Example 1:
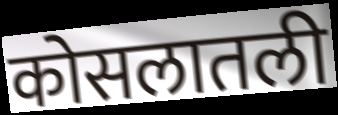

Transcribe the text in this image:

कोसलातली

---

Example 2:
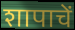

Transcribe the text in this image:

शापाचें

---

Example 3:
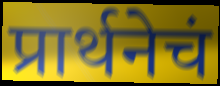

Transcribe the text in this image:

प्रार्थनेचं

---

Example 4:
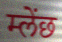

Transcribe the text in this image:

म्लेंछ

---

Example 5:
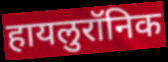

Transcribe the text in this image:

हायलुरॉनिक